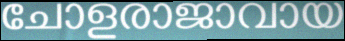
ചോളരാജാവായ